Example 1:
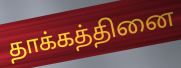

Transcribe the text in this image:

தாக்கத்தினை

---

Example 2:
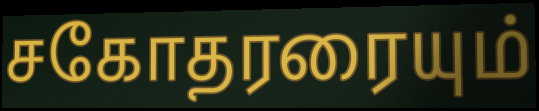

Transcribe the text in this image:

சகோதரரையும்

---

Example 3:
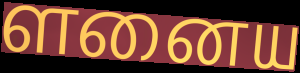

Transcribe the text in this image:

ளனைய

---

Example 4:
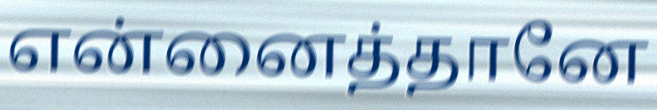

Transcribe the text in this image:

என்னைத்தானே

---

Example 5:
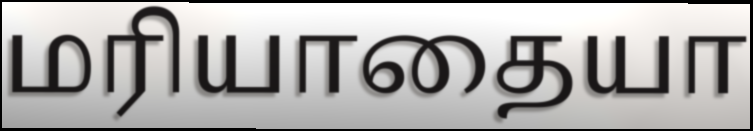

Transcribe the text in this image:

மரியாதையா